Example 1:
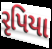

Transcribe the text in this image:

રૃપિયા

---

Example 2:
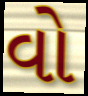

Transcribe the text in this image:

વો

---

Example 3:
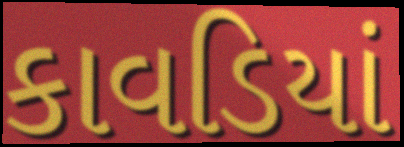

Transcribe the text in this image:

કાવડિયાં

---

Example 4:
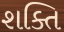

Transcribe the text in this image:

શક્તિ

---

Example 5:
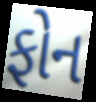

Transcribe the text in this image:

ફોન